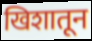
खिशातून